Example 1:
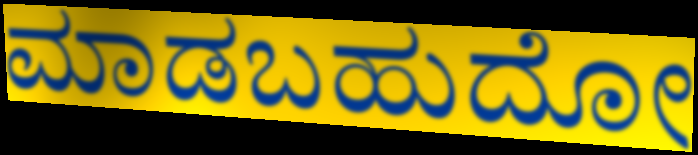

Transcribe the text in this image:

ಮಾಡಬಹುದೋ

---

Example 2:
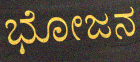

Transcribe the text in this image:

ಭೋಜನ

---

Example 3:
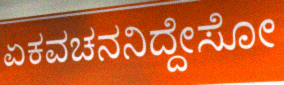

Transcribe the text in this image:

ಏಕವಚನನಿದ್ದೇಸೋ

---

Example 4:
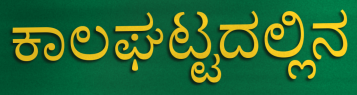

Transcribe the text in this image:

ಕಾಲಘಟ್ಟದಲ್ಲಿನ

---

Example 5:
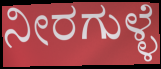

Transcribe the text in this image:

ನೀರಗುಳ್ಳೆ